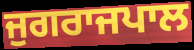
ਜੁਗਰਾਜਪਾਲ